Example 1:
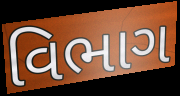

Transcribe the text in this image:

વિભાગ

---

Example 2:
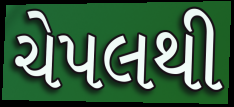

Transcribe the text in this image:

ચેપલથી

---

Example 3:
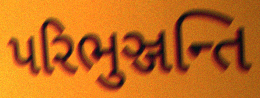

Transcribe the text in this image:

પરિભુઞ્જન્તિ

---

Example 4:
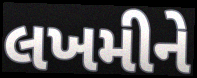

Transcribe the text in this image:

લખમીને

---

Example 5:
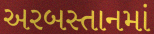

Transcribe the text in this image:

અરબસ્તાનમાં